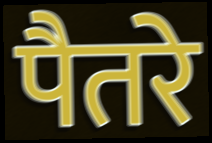
पैतरे